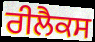
ਰੀਲੈਕਸ